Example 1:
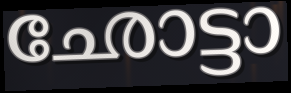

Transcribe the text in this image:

ഛോട്ടാ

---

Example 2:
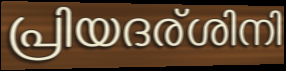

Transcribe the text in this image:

പ്രിയദര്ശിനി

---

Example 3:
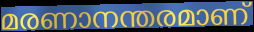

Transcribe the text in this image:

മരണാനന്തരമാണ്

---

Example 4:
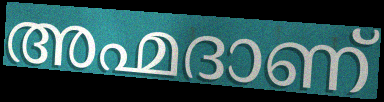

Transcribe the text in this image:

അഹ്മദാണ്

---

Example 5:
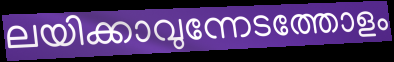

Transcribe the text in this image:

ലയിക്കാവുന്നേടത്തോളം